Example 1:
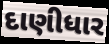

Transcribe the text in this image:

દાણીધાર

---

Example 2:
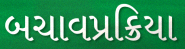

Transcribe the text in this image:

બચાવપ્રક્રિયા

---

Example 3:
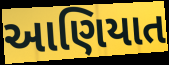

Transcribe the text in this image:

આણિયાત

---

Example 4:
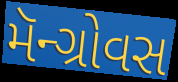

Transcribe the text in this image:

મૅન્ગ્રોવસ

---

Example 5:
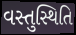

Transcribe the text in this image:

વસ્તુસ્થિતિ